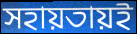
সহায়তায়ই